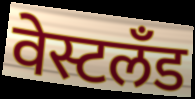
वेस्टलँड